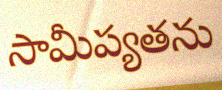
సామీప్యతను